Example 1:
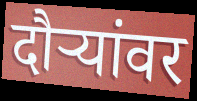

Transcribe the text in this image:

दौर्‍यांवर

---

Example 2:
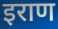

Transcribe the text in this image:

इराण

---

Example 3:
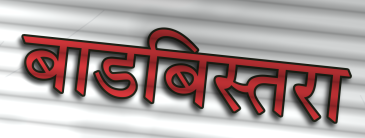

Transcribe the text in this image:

बाडबिस्तरा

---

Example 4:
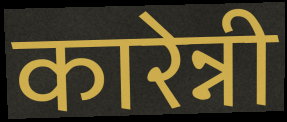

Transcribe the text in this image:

कारेन्नी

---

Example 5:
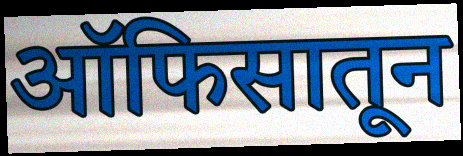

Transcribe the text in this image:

ऑफिसातून